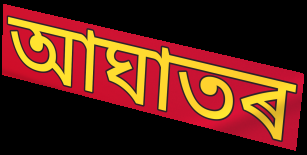
আঘাতৰ